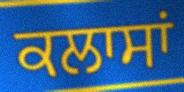
ਕਲਾਸਾਂ